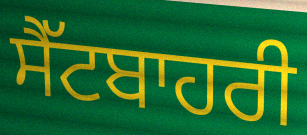
ਸੈੱਟਬਾਹਰੀ